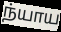
ந்யாய